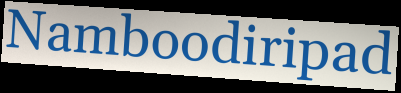
Namboodiripad